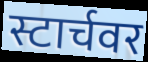
स्टार्चवर